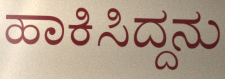
ಹಾಕಿಸಿದ್ದನು